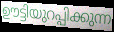
ഊട്ടിയുറപ്പിക്കുന്ന